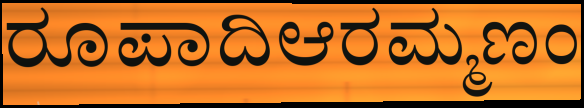
ರೂಪಾದಿಆರಮ್ಮಣಂ